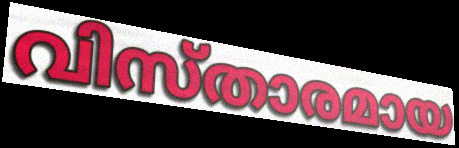
വിസ്താരമായ